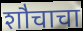
शौचाचा